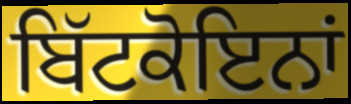
ਬਿੱਟਕੋਇਨਾਂ